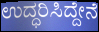
ಉದ್ಧರಿಸಿದ್ದೇನೆ